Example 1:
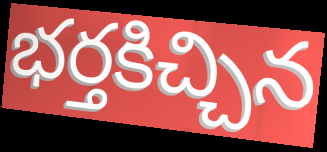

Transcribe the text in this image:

భర్తకిచ్చిన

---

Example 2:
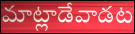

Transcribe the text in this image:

మాట్లాడేవాడట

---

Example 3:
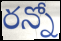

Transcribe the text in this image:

రన్నో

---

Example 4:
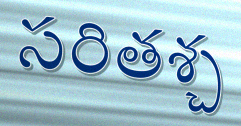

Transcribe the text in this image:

సరితశ్చ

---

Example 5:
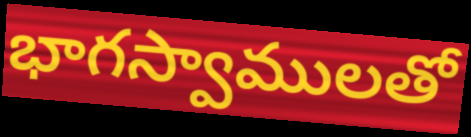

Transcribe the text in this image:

భాగస్వాములతో